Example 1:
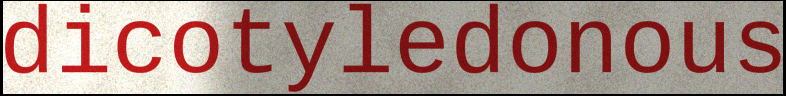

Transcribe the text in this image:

dicotyledonous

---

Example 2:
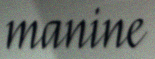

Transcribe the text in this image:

manine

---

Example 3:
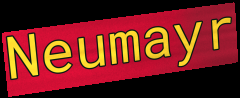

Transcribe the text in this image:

Neumayr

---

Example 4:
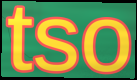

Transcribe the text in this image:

tso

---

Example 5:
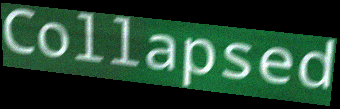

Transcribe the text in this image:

Collapsed